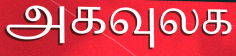
அகவுலக